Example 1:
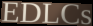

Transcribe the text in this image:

EDLCs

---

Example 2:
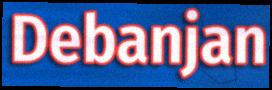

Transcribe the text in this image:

Debanjan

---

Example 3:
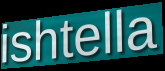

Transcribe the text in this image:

ishtella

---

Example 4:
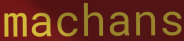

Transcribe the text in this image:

machans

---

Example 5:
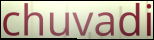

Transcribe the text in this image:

chuvadi